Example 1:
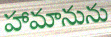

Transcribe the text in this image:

హామానును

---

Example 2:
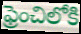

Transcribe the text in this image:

ఫ్రెంచిలోకి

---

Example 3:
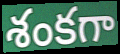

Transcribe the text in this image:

శంకగా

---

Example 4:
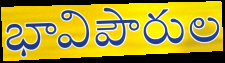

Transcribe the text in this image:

భావిపౌరుల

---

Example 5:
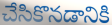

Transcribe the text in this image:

చేసికొనడానికి